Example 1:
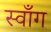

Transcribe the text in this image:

स्वाँग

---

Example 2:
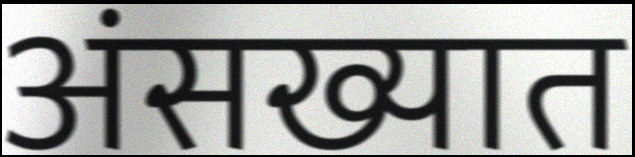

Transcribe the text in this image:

अंसख्यात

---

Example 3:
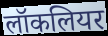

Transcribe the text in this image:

लॉकलियर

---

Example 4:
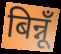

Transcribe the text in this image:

बिन्नूँ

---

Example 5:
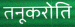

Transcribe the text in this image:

तनूकरोति